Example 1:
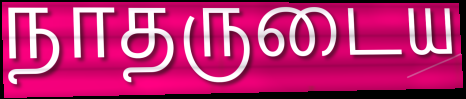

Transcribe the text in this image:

நாதருடைய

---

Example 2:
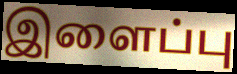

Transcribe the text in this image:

இளைப்பு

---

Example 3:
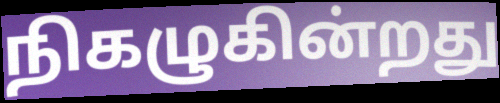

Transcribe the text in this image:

நிகழுகின்றது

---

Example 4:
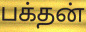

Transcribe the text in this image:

பக்தன்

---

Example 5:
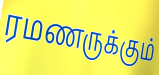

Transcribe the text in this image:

ரமணருக்கும்